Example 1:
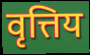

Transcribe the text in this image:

वृत्तिय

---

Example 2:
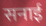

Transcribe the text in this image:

सनाई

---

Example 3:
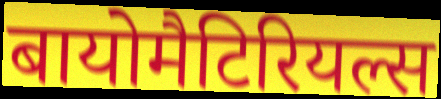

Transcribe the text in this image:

बायोमैटिरियल्स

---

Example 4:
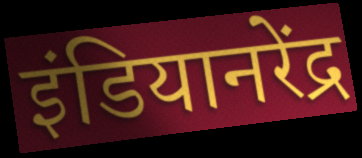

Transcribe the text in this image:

इंडियानरेंद्र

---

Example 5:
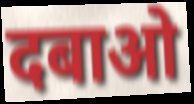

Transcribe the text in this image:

दबाओ